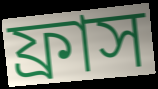
ফ্রাস